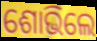
ଶୋଭିଲେ